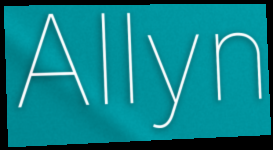
Allyn